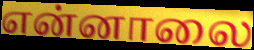
என்னாலை